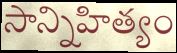
సాన్నిహిత్యం